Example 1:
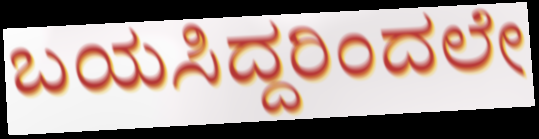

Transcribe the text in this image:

ಬಯಸಿದ್ದರಿಂದಲೇ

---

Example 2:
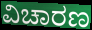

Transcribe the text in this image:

ವಿಚಾರಣ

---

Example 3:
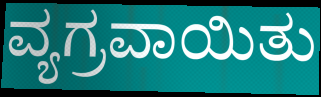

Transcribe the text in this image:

ವ್ಯಗ್ರವಾಯಿತು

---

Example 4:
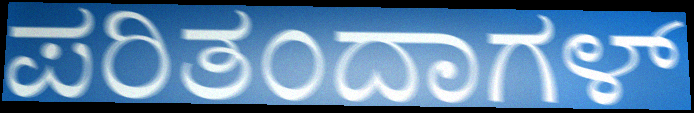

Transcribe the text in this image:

ಪರಿತಂದಾಗಳ್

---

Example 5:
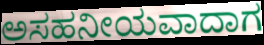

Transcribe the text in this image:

ಅಸಹನೀಯವಾದಾಗ